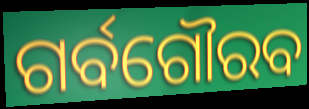
ଗର୍ବଗୌରବ